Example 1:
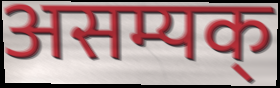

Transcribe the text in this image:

असम्यक्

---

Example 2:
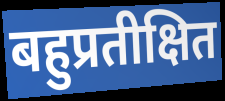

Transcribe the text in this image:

बहुप्रतीक्षित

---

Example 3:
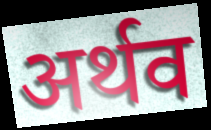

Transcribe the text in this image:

अर्थव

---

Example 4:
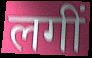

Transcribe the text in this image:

लगीं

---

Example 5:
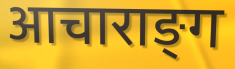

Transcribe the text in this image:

आचाराङ्ग